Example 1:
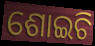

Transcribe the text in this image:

ଶୋଇଚି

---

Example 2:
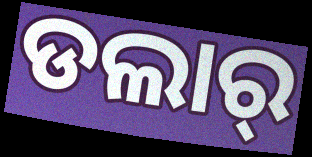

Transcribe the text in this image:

ଡଲାର୍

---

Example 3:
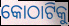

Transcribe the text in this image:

କୋଠାଟିକୁ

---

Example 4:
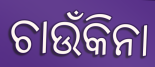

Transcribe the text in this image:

ଚାଉଁକିନା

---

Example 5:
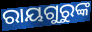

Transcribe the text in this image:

ରାୟଗୁରୁଙ୍କ